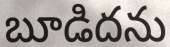
బూడిదను